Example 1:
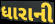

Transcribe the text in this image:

ધારાની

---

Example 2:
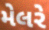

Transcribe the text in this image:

મેલરે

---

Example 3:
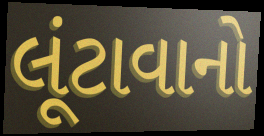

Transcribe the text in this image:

લૂંટાવાનો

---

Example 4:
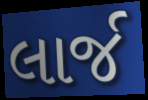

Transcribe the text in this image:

લાર્જ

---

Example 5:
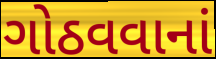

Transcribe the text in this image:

ગોઠવવાનાં